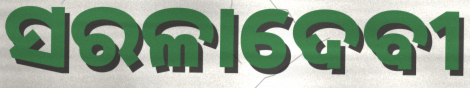
ସରଳାଦେବୀ